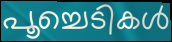
പൂച്ചെടികൾ